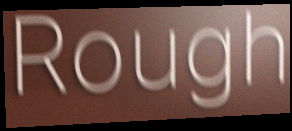
Rough